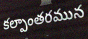
కల్పాంతరమున